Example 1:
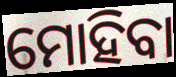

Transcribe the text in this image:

ମୋହିବା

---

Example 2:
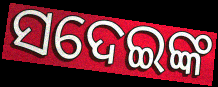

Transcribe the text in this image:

ସଦେଇଙ୍କ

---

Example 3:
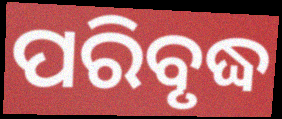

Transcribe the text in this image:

ପରିବୃଦ୍ଧ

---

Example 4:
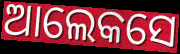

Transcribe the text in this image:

ଆଲେକସେ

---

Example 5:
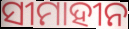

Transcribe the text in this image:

ସୀମାହୀନ